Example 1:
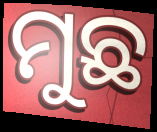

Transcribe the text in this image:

ମୁଛ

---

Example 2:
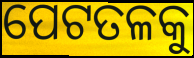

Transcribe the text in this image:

ପେଟତଳକୁ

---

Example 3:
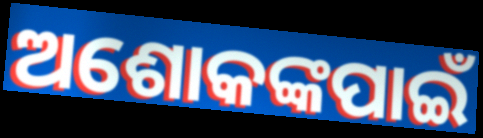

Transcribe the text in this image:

ଅଶୋକଙ୍କପାଇଁ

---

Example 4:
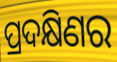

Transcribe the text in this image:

ପ୍ରଦକ୍ଷିଣର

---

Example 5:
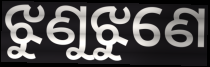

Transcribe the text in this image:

ଝୁଣୁଝୁଣେ